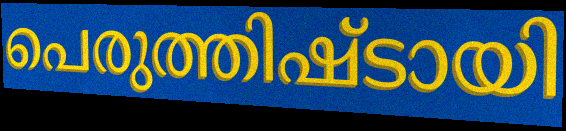
പെരുത്തിഷ്ടായി